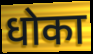
धोका